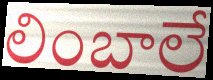
లింబాలే